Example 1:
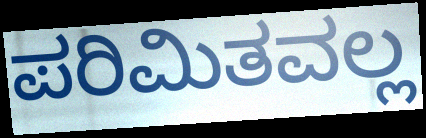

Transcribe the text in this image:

ಪರಿಮಿತವಲ್ಲ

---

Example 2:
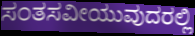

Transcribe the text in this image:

ಸಂತಸವೀಯುವುದರಲ್ಲಿ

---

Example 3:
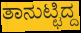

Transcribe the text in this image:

ತಾನುಟ್ಟಿದ್ದ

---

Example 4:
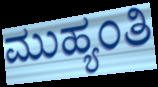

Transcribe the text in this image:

ಮುಹ್ಯಂತಿ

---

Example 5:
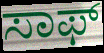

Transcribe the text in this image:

ಸಾಫ್